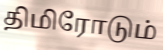
திமிரோடும்